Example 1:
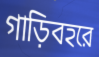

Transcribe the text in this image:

গাড়িবহরে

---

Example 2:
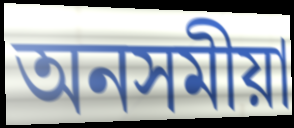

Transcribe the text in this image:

অনসমীয়া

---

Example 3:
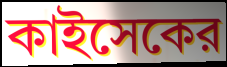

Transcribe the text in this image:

কাইসেকের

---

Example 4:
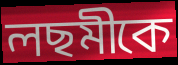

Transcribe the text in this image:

লছমীকে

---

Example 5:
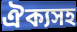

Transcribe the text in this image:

ঐক্যসহ